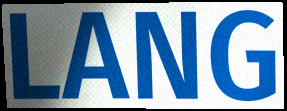
LANG